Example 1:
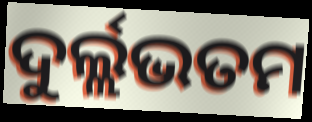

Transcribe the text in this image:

ଦୁର୍ଲ୍ଲଭତମ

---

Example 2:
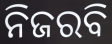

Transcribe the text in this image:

ନିଜରବି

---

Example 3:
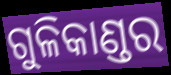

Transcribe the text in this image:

ଗୁଳିକାଣ୍ଡର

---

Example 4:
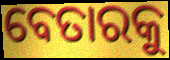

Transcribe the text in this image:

ବେତାରକୁ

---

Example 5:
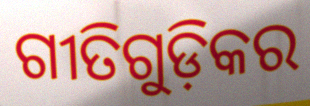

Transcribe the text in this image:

ଗୀତିଗୁଡ଼ିକର